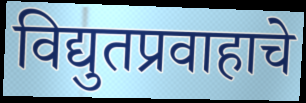
विद्युतप्रवाहाचे